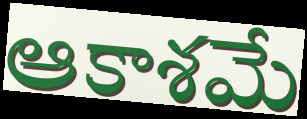
ఆకాశమే